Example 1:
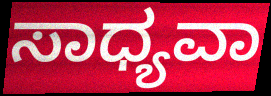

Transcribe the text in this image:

ಸಾಧ್ಯವಾ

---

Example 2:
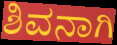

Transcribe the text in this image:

ಶಿವನಾಗಿ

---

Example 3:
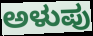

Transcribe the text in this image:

ಅಳುಪು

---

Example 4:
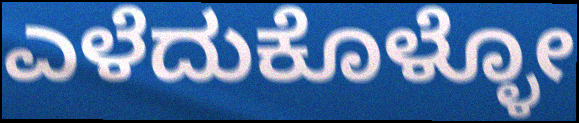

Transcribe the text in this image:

ಎಳೆದುಕೊಳ್ಳೋ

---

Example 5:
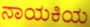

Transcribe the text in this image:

ನಾಯಕಿಯ